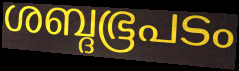
ശബ്ദഭൂപടം